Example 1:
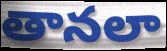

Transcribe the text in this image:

తానలా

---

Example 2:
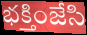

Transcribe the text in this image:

భక్తింజేసి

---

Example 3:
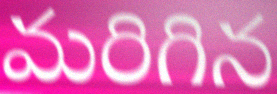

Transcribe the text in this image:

మరిగిన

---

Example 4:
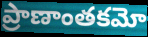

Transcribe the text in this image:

ప్రాణాంతకమో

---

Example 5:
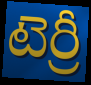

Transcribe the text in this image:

టెర్రీ